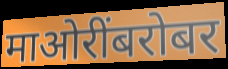
माओरींबरोबर